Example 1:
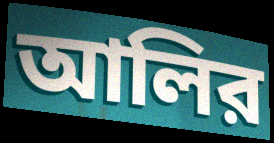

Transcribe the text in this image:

আলির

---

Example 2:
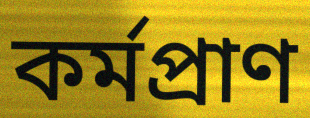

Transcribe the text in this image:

কর্মপ্রাণ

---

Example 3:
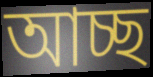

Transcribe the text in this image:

আচ্ছ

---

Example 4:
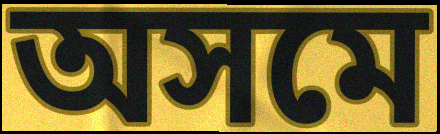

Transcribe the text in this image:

অসমে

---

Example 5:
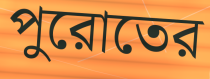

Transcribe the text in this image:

পুরোতের